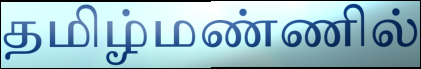
தமிழ்மண்ணில்